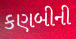
કણબીની